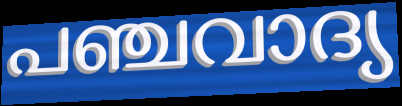
പഞ്ചവാദ്യ